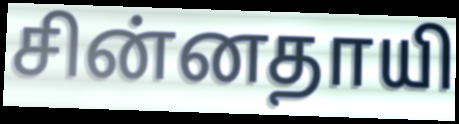
சின்னதாயி